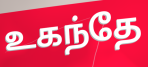
உகந்தே